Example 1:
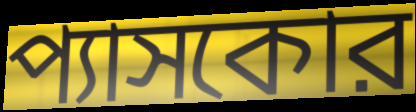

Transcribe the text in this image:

প্যাসকোর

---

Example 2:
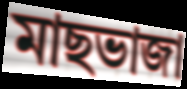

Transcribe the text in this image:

মাছভাজা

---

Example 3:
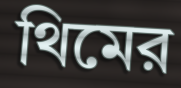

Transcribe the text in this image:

থিমের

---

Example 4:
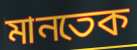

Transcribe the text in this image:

মানতেক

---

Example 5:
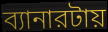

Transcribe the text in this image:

ব্যানারটায়